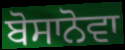
ਬੋਸਾਨੋਵਾ